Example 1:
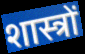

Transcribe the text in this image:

शास्त्रों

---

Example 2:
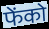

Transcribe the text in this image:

फेंको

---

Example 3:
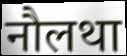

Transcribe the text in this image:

नौलथा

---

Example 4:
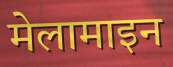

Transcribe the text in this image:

मेलामाइन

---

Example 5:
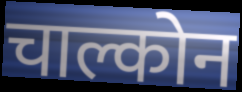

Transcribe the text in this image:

चाल्कोन